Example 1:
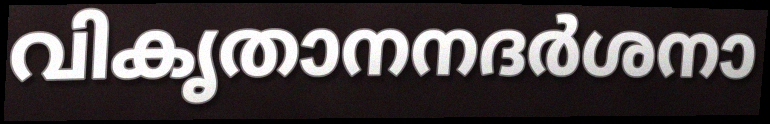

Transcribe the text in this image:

വികൃതാനനദർശനാ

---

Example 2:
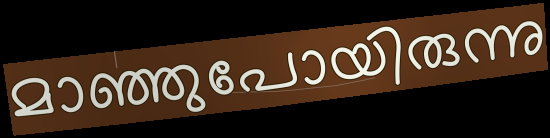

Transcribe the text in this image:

മാഞ്ഞുപോയിരുന്നു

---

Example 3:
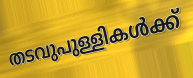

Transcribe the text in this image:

തടവുപുള്ളികൾക്ക്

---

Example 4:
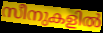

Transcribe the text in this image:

സീനുകളിൽ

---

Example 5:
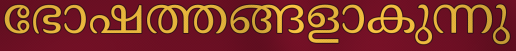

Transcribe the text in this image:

ഭോഷത്തങ്ങളാകുന്നു